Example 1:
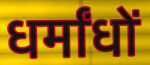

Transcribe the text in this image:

धर्मांधों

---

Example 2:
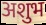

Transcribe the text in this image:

अशुभ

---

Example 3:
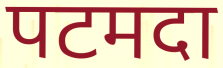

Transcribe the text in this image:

पटमदा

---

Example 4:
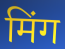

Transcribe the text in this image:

मिंग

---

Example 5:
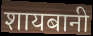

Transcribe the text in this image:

शायबानी